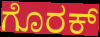
ಗೊರಕ್